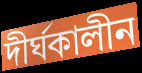
দীর্ঘকালীন